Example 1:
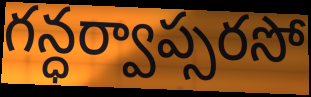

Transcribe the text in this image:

గన్ధర్వాప్సరసో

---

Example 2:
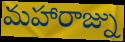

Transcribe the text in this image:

మహారాజ్ను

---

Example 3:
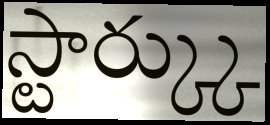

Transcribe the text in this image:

స్టార్క్కు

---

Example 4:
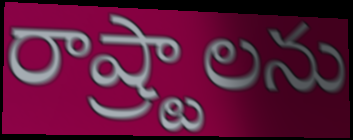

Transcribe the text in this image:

రాష్ర్టాలను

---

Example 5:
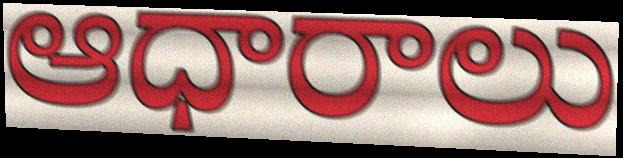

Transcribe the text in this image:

ఆధారాలు